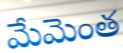
మేమెంత